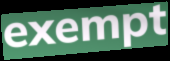
exempt